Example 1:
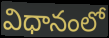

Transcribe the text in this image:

విధానంలో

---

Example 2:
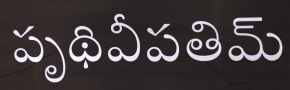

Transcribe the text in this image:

పృథివీపతిమ్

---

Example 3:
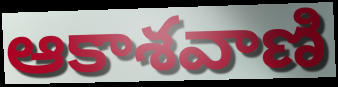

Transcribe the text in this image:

ఆకాశవాణి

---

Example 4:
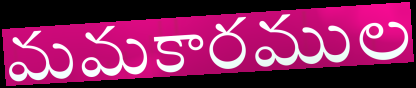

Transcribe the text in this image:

మమకారముల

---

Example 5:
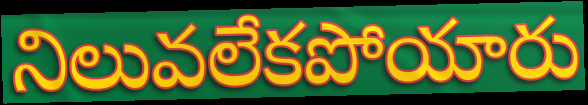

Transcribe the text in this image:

నిలువలేకపోయారు